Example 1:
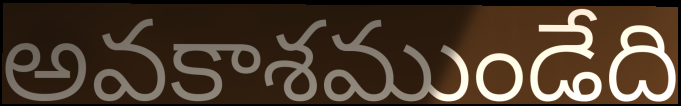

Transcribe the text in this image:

అవకాశముండేది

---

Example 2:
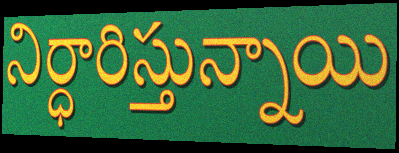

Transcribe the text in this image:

నిర్ధారిస్తున్నాయి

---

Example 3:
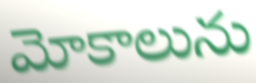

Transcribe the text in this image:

మోకాలును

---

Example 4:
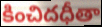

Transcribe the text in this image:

కించిదధీతా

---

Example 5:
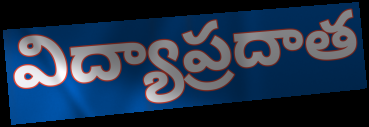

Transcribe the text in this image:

విద్యాప్రదాత